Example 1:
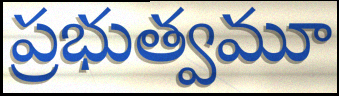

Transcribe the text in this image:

ప్రభుత్వమూ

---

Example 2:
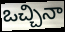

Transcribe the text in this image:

ఒచ్చినా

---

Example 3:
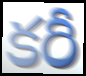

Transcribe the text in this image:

కరీ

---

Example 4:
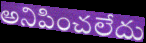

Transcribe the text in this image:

అనిపించలేదు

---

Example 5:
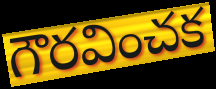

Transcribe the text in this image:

గౌరవించక